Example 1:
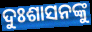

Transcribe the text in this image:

ଦୁଃଶାସନଙ୍କୁ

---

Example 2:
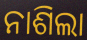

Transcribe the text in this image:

ନାଶିଲା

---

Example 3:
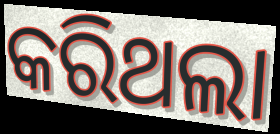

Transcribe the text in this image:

କରିଥଲା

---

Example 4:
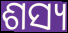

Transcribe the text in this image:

ଶସ୍ଯ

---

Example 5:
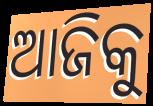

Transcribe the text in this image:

ଆଜିକୁ